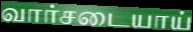
வார்சடையாய்